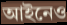
আইনেও